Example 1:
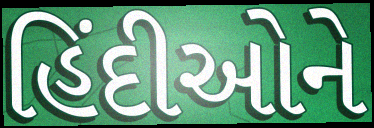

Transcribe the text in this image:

હિંદીઓને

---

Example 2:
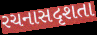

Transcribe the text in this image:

રચનાસદૃશતા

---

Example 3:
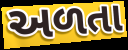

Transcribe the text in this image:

અળતા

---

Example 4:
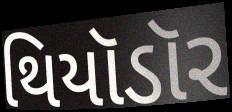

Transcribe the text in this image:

થિયૉડૉર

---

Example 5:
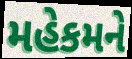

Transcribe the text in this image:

મહેકમને